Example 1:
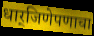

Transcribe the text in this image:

धार्जिणेपणाचा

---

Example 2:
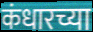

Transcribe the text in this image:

कंधारच्या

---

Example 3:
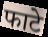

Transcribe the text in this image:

फाटे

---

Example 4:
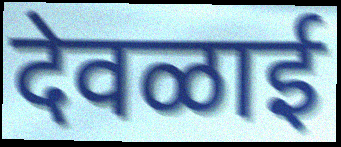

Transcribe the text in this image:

देवळाई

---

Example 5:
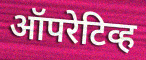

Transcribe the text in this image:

ऑपरेटिव्ह